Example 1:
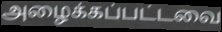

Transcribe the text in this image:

அழைக்கப்பட்டவை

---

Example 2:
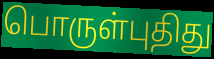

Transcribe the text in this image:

பொருள்புதிது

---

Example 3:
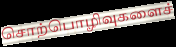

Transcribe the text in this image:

சொற்பொழிவுகளைச்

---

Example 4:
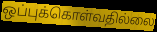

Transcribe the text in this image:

ஒப்புக்கொள்வதில்லை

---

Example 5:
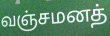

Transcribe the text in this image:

வஞ்சமனத்